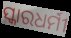
ସ୍କାରଧର୍ମୀ